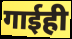
गाईही